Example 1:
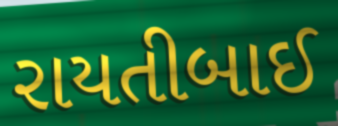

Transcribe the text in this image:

રાયતીબાઈ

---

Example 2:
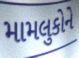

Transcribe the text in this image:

મામલુકોને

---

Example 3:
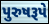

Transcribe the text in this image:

પુરુષરૂપે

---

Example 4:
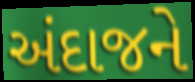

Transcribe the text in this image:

અંદાજને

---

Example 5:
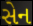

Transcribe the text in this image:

સેન